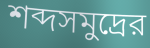
শব্দসমুদ্রের